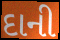
દાની